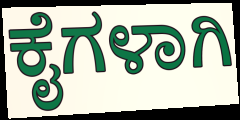
ಕೈಗಳಾಗಿ